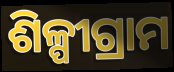
ଶିଳ୍ପୀଗ୍ରାମ